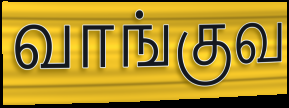
வாங்குவ